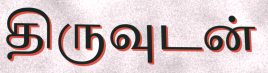
திருவுடன்